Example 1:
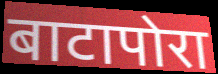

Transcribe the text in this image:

बाटापोरा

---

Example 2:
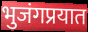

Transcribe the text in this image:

भुजंगप्रयात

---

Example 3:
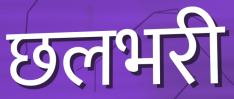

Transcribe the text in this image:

छलभरी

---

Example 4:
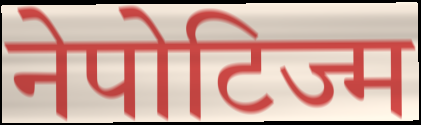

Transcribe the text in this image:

नेपोटिज्‍म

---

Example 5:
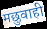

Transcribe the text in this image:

मछुवाही